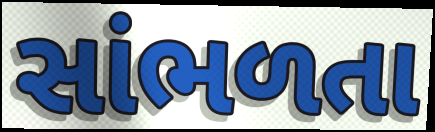
સાંભળતા